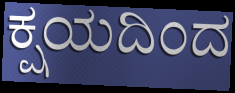
ಕ್ಷಯದಿಂದ